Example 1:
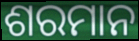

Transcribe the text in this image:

ଶରମାନ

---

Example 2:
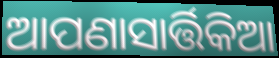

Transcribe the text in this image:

ଆପଣାସାର୍ତ୍ତିକିଆ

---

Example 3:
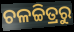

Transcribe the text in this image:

ଚଳଚ୍ଚିତ୍ରରୁ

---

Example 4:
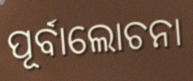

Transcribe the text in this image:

ପୂର୍ବାଲୋଚନା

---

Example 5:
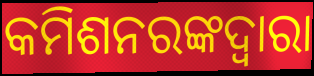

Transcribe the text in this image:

କମିଶନରଙ୍କଦ୍ୱାରା